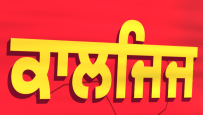
ਕਾਲਜਿਜ